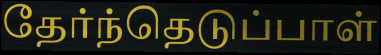
தேர்ந்தெடுப்பாள்